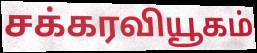
சக்கரவியூகம்